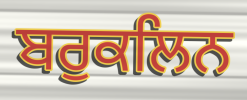
ਬਰੁਕਲਿਨ